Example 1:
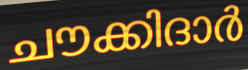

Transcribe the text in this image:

ചൗക്കിദാർ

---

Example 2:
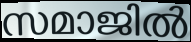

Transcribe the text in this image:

സമാജിൽ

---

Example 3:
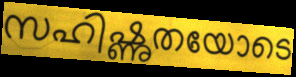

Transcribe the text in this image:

സഹിഷ്ണുതയോടെ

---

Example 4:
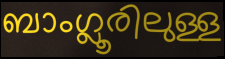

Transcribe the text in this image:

ബാംഗ്ലൂരിലുള്ള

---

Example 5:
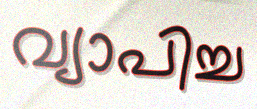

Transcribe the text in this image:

വ്യാപിച്ച